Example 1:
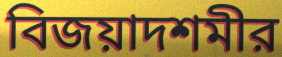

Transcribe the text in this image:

বিজয়াদশমীর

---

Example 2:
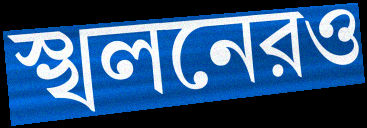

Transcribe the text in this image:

স্খলনেরও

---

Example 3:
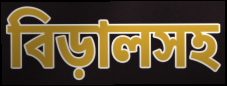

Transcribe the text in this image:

বিড়ালসহ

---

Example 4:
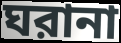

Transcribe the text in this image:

ঘরানা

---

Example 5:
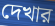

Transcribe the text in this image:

দেখার